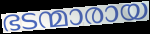
ഭടന്മാരായ